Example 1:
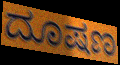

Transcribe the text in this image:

ದೂಷಣ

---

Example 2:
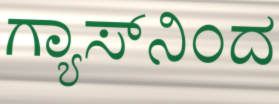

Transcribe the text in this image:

ಗ್ಯಾಸ್‌ನಿಂದ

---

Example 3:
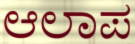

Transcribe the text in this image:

ಆಲಾಪ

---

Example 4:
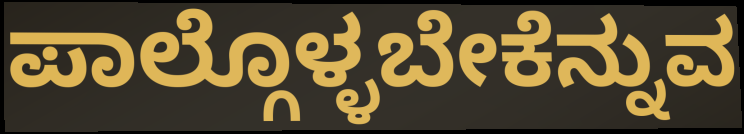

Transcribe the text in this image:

ಪಾಲ್ಗೊಳ್ಳಬೇಕೆನ್ನುವ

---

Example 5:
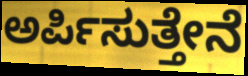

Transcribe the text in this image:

ಅರ್ಪಿಸುತ್ತೇನೆ